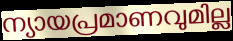
ന്യായപ്രമാണവുമില്ല